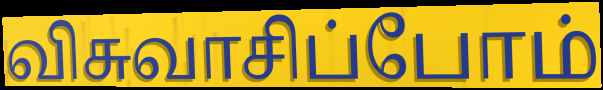
விசுவாசிப்போம்